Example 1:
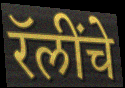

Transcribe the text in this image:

रॅलींचे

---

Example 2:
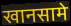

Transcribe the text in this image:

खानसामे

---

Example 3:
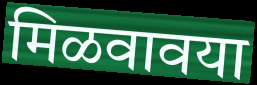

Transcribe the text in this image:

मिळवावया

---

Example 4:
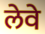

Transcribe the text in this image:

लेवे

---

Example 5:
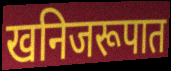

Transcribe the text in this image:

खनिजरूपात